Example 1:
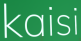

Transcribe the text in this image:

kaisi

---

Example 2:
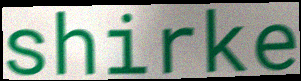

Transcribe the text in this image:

shirke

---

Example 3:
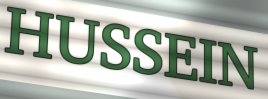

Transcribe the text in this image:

HUSSEIN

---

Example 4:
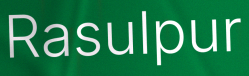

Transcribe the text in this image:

Rasulpur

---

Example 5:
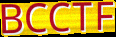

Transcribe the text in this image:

BCCTF